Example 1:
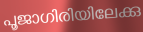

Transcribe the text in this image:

പൂജാഗിരിയിലേക്കു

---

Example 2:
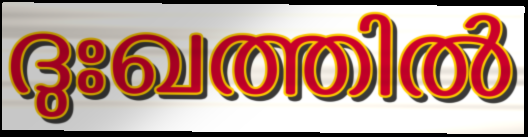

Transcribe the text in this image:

ദുഃഖത്തിൽ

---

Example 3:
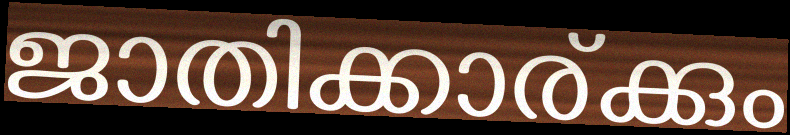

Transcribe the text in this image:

ജാതിക്കാര്ക്കും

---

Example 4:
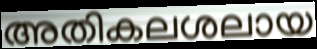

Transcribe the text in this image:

അതികലശലായ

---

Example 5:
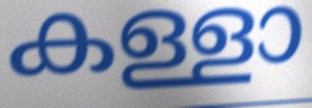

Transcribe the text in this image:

കള്ളാ